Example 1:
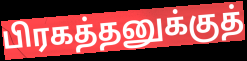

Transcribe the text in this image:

பிரகத்தனுக்குத்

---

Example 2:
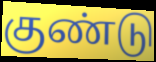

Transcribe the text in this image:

குண்டு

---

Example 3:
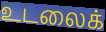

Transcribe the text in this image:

உடலைக்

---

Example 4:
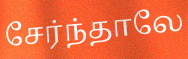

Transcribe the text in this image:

சேர்ந்தாலே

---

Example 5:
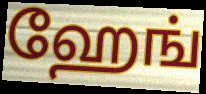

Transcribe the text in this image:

ஹேங்